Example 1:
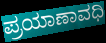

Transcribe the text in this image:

ಪ್ರಯಾಣಾವಧಿ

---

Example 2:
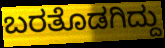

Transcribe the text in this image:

ಬರತೊಡಗಿದ್ದು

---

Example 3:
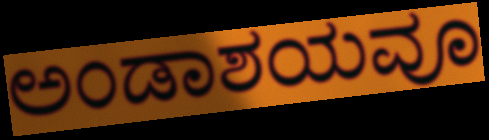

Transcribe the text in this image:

ಅಂಡಾಶಯವೂ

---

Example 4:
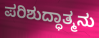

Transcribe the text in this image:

ಪರಿಶುದ್ಧಾತ್ಮನು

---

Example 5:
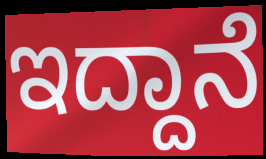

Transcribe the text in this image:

ಇದ್ದಾನೆ